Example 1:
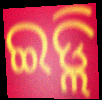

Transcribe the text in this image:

ଇଡ୍ଲି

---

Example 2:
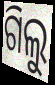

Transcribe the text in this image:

ଗିଲୁ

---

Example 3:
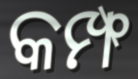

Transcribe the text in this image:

କମ୍ଫ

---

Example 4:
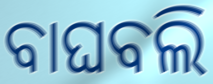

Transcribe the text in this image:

ବାଘବଲି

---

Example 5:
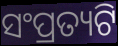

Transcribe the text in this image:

ସଂପ୍ରତ୍ୟଟି